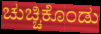
ಚುಚ್ಚಿಕೊಂಡು